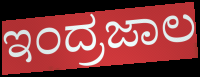
ಇಂದ್ರಜಾಲ